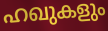
ഹഖുകളും